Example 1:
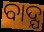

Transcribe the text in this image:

ବାଦ୍ଯ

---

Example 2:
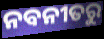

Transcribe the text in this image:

ନବନୀତରୁ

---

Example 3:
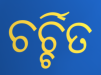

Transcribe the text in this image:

ଚର୍ଚ୍ଚିତ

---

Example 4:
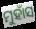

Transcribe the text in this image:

ମୁହାଁସ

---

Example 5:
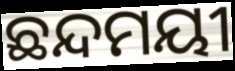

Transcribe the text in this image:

ଛନ୍ଦମୟୀ